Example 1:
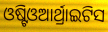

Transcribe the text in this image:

ଓଷ୍ଟିଓଆର୍ଥ୍ରାଇଟିସ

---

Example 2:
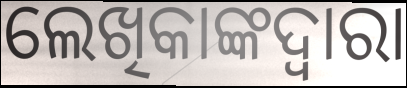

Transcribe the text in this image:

ଲେଖିକାଙ୍କଦ୍ୱାରା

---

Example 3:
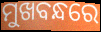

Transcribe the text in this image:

ମୁଖବନ୍ଧରେ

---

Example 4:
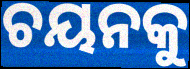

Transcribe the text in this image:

ଚୟନକୁ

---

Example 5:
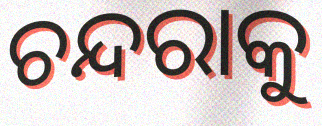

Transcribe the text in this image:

ଚନ୍ଦରାକୁ